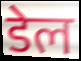
डेल